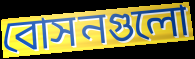
বোসনগুলো